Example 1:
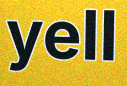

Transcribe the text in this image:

yell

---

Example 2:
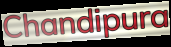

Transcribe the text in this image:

Chandipura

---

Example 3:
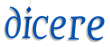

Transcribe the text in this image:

dicere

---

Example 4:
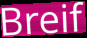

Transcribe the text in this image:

Breif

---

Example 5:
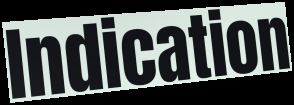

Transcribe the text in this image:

Indication